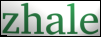
zhale